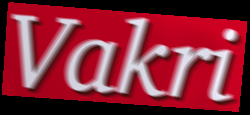
Vakri